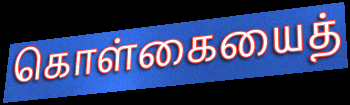
கொள்கையைத்